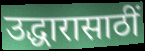
उद्धारासाठीं